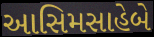
આસિમસાહેબે